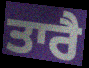
ਤਾਰੈ